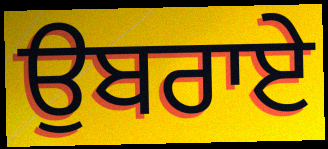
ਉਬਰਾਏ